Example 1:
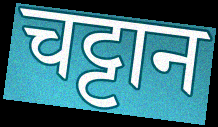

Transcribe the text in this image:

चट्टान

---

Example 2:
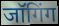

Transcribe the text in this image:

जॉगिंग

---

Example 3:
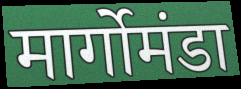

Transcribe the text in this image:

मार्गोमंडा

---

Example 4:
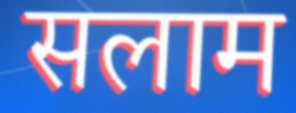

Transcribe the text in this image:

सलाम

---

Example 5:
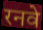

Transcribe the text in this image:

रनवे